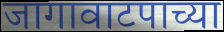
जागावाटपाच्या